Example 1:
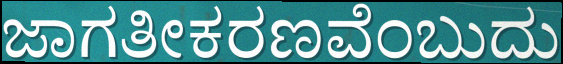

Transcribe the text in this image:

ಜಾಗತೀಕರಣವೆಂಬುದು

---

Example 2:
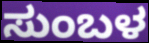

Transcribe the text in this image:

ಸುಂಬಳ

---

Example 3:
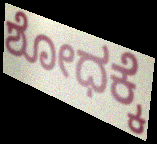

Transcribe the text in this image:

ಶೋಧಕ್ಕೆ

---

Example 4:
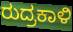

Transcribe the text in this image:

ರುದ್ರಕಾಳಿ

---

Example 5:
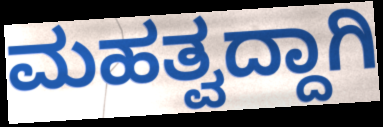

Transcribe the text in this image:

ಮಹತ್ವದ್ದಾಗಿ